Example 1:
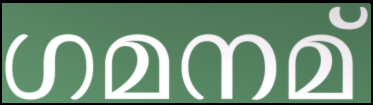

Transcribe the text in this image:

ഗമനമ്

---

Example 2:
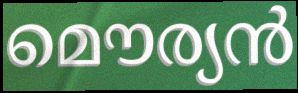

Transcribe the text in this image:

മൌര്യൻ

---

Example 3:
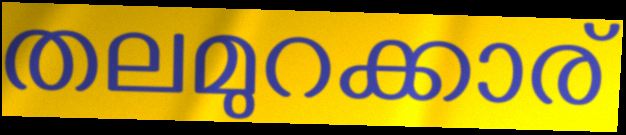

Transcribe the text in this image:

തലമുറക്കാര്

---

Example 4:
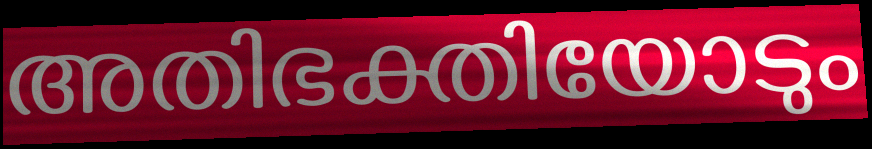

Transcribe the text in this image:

അതിഭക്തിയോടും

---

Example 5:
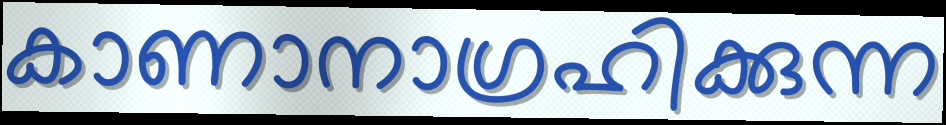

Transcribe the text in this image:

കാണാനാഗ്രഹിക്കുന്ന